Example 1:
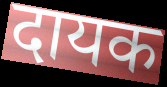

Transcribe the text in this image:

दायक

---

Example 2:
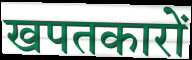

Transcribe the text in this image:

खपतकारों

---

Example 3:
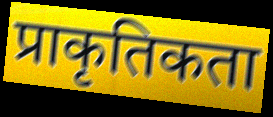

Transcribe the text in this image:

प्राकृतिकता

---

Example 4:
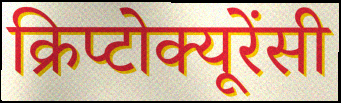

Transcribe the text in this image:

क्रिप्टोक्यूरेंसी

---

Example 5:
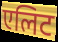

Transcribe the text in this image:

एलिट